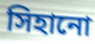
সিহানো